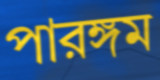
পারঙ্গম